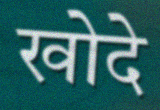
खोदे